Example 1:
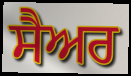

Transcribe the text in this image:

ਸੈਅਰ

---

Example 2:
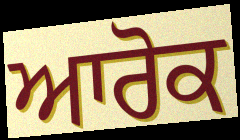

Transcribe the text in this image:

ਆਰੋਕ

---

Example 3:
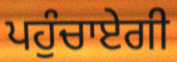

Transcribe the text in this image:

ਪਹੁੰਚਾਏਗੀ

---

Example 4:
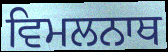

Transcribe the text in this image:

ਵਿਮਲਨਾਥ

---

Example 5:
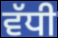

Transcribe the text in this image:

ਵੱਧੀ